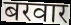
बरवार